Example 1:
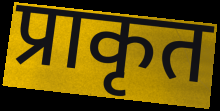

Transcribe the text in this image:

प्राकृत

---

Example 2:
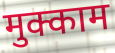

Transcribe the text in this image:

मुक्काम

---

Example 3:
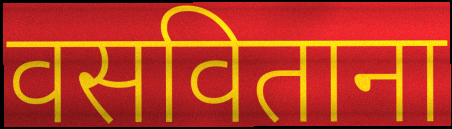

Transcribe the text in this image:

वसविताना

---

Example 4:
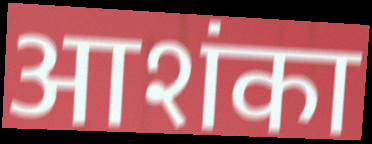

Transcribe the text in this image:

आशंका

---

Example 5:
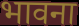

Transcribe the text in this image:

भावना